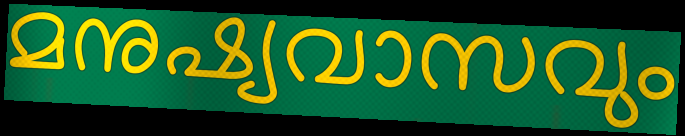
മനുഷ്യവാസവും